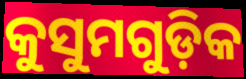
କୁସୁମଗୁଡ଼ିକ